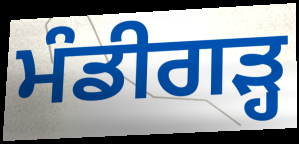
ਮੰਡੀਗੜ੍ਹ